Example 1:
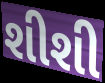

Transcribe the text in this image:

શીશી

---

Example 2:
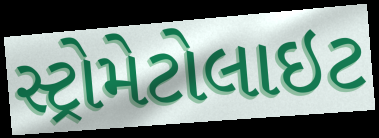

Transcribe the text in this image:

સ્ટ્રોમેટોલાઇટ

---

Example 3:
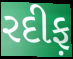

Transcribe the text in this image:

રદીફ઼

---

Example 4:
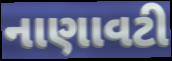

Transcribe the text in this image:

નાણાવટી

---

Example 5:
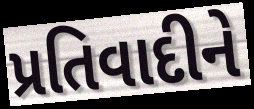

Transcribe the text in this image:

પ્રતિવાદીને